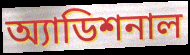
অ্যাডিশনাল